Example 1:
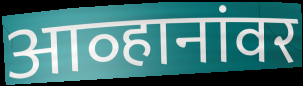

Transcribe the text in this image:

आव्हानांवर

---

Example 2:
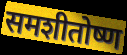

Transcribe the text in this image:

समशीतोष्ण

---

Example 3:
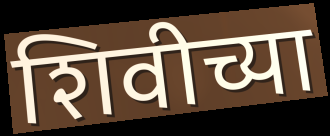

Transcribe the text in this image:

शिवीच्या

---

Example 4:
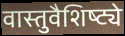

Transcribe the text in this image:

वास्तुवैशिष्ट्ये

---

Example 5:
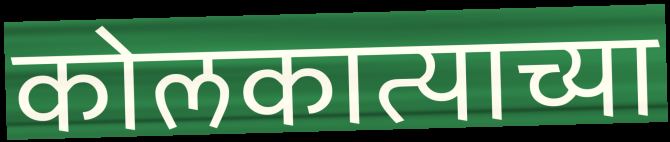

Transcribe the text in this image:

कोलकात्याच्या